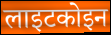
लाइटकोइन